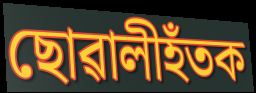
ছোৱালীহঁতক